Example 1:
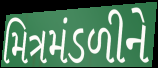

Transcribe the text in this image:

મિત્રમંડળીને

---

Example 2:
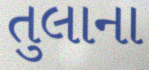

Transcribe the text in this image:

તુલાના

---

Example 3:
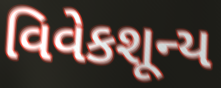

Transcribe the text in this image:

વિવેકશૂન્ય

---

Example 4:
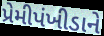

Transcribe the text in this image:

પ્રેમીપંખીડાને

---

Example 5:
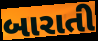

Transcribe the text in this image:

બારાતી